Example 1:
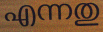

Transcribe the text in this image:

എന്നതു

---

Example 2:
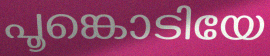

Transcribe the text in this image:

പൂങ്കൊടിയേ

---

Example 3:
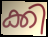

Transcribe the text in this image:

ക്കി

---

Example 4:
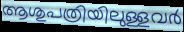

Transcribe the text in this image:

ആശുപത്രിയിലുള്ളവർ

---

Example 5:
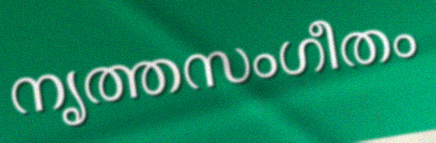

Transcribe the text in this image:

നൃത്തസംഗീതം